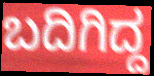
ಬದಿಗಿದ್ದ